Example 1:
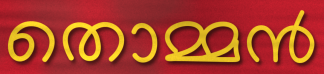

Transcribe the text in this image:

തൊമ്മൻ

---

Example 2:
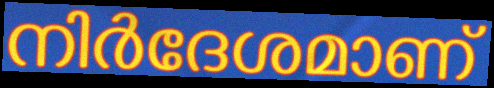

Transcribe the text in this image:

നിർദേശമാണ്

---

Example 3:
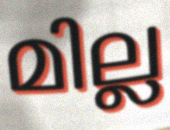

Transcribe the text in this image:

മില്ല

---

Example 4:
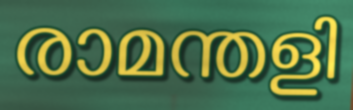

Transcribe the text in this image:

രാമന്തളി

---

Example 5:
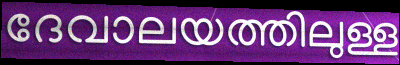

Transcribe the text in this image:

ദേവാലയത്തിലുള്ള